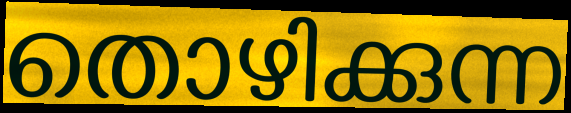
തൊഴിക്കുന്ന